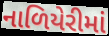
નાળિયેરીમાં